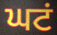
ਘਟਂ